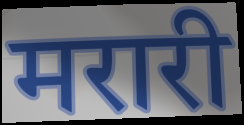
मरारी